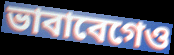
ভাবাবেগেও